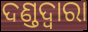
ଦଣ୍ଡଦ୍ବାରା